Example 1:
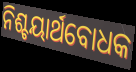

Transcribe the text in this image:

ନିଶ୍ଚୟାର୍ଥବୋଧକ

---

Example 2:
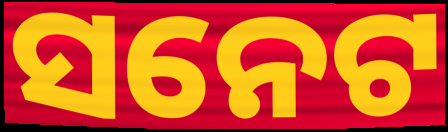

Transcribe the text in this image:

ସନେଟ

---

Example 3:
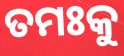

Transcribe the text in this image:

ତମଃକୁ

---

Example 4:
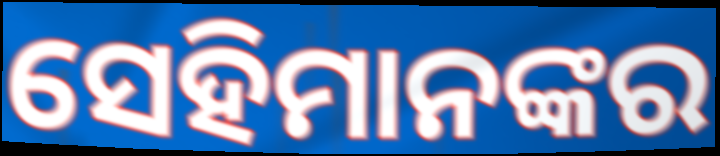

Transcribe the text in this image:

ସେହିମାନଙ୍କର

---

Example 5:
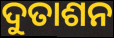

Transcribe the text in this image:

ଦୁତାଶନ